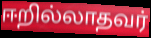
ஈறில்லாதவர்